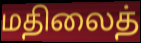
மதிலைத்